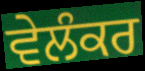
ਵੇਲੰਕਰ